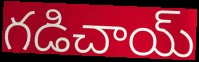
గడిచాయ్